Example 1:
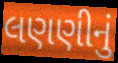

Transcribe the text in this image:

લણણીનું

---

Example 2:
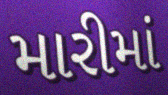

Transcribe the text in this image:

મારીમાં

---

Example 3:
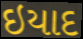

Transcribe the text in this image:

ઇયાદ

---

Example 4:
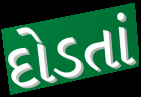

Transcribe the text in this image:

દોડતાં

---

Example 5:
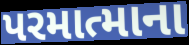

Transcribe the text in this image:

પરમાત્માના